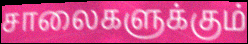
சாலைகளுக்கும்